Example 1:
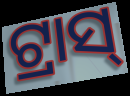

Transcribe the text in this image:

ଟ୍ରାସ୍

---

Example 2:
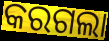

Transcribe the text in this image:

କରଗଲା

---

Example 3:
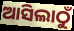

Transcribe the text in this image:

ଆସିଲାଠୁଁ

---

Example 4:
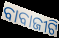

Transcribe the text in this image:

ବାବାଜୀଟି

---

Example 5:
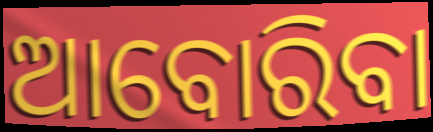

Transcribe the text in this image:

ଆବୋରିବା